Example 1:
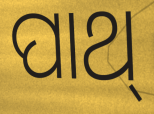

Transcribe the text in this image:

ପାଥ୍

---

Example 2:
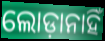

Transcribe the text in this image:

ଲୋଡ଼ାନାହିଁ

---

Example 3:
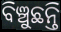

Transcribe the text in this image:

ବିଞ୍ଚୁଛନ୍ତି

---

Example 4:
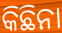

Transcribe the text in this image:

କିଛିନା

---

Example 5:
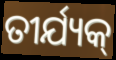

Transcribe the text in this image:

ତୀର୍ଯ୍ୟକ୍